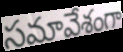
సమావేశంగా